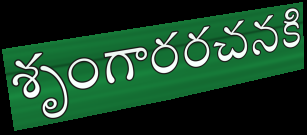
శృంగారరచనకి